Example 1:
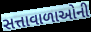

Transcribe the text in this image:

સત્તાવાળાઓની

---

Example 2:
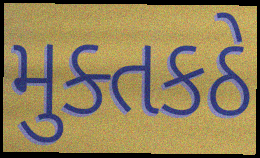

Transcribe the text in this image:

મુક્તકઠે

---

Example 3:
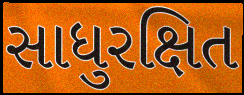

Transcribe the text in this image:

સાધુરક્ષિત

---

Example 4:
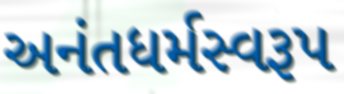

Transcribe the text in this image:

અનંતધર્મસ્વરૂપ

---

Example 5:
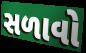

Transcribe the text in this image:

સળાવો